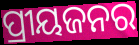
ପ୍ରୀୟଜନର